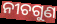
ନୀଚଗୁଣ